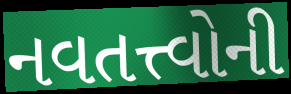
નવતત્ત્વોની